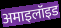
अमाइलॉइड